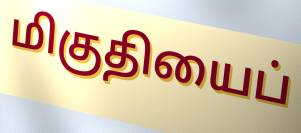
மிகுதியைப்